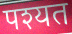
पश्यत